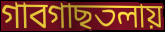
গাবগাছতলায়